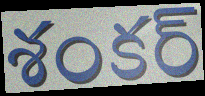
శంకర్